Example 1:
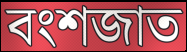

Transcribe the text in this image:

বংশজাত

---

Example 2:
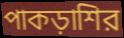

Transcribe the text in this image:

পাকড়াশির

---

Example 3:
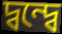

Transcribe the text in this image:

দ্বন্দ্বে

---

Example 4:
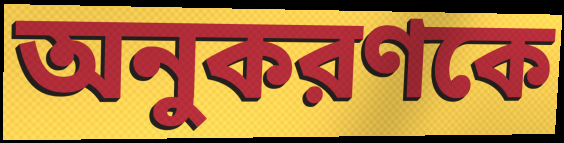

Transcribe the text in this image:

অনুকরণকে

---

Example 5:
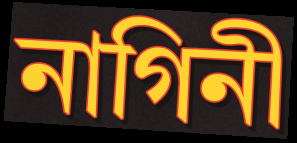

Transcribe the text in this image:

নাগিনী